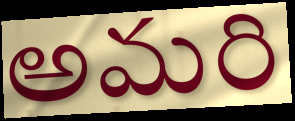
అమరి